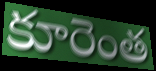
కూరెంత